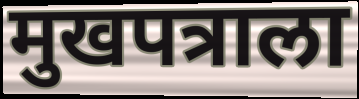
मुखपत्राला